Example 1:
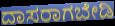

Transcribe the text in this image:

ದಾಸರಾಗಬೇಡಿ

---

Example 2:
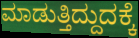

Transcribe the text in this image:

ಮಾಡುತ್ತಿದ್ದುದಕ್ಕೆ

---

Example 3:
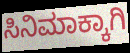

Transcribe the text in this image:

ಸಿನಿಮಾಕ್ಕಾಗಿ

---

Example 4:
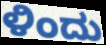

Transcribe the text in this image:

ಳಿಂದು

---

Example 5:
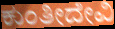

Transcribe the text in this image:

ಕುಂತೀದೇವಿ